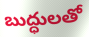
బుద్ధులతో